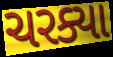
ચરક્યા